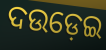
ଦଉଡ଼େଇ